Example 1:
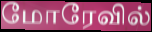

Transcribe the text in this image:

மோரேவில்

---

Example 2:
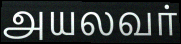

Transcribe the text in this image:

அயலவர்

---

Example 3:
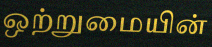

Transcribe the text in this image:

ஒற்றுமையின்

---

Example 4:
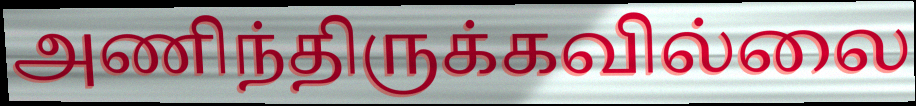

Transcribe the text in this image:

அணிந்திருக்கவில்லை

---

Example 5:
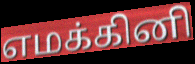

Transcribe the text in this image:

எமக்கினி